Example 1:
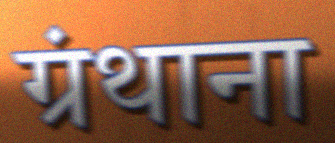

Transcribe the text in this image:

ग्रंथाना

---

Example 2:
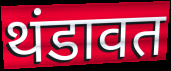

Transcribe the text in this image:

थंडावत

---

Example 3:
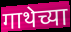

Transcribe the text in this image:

गाथेच्या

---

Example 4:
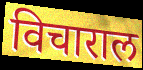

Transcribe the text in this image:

विचाराल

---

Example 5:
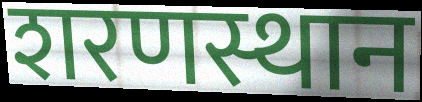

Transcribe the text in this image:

शरणस्थान